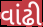
વાંઢી